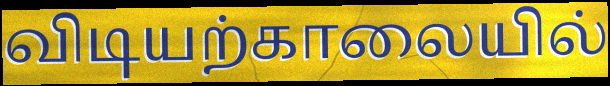
விடியற்காலையில்